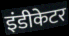
इंडीकेटर